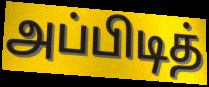
அப்பிடித்